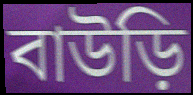
বাউড়ি